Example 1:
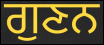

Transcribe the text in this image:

ਗੁਣਨ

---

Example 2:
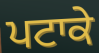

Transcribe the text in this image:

ਪਟਾਕੇ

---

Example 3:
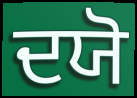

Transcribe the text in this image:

ਦਯੋ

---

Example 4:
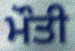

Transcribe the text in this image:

ਮੌਤੀ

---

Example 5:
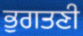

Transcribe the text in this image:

ਭੁਗਤਣੀ